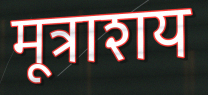
मूत्राशय